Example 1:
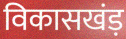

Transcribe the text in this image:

विकासखंड़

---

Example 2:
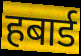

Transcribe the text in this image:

हबार्ड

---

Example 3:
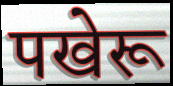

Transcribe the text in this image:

पखेरू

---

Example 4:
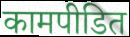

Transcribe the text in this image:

कामपीडित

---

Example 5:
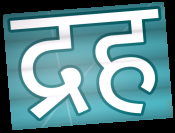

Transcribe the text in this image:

द्रह